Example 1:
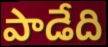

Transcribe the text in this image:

పాడేది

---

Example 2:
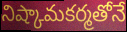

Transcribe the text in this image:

నిష్కామకర్మతోనే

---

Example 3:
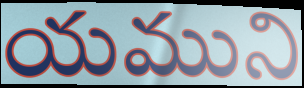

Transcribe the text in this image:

యముని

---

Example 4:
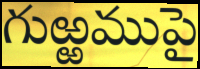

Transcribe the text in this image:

గుఱ్ఱముపై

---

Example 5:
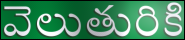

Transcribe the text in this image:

వెలుతురికి